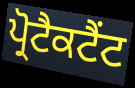
ਪ੍ਰੋਟੈਕਟੈਂਟ